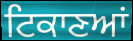
ਟਿਕਾਣਆਂ